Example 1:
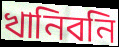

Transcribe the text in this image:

খানিবনি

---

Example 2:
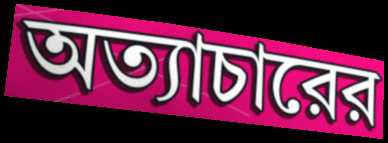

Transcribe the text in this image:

অত্যাচারের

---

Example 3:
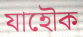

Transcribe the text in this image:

যাহৌক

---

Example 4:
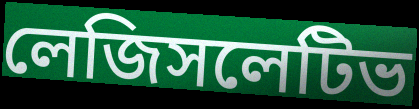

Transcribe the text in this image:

লেজিসলেটিভ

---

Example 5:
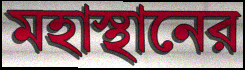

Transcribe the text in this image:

মহাস্থানের